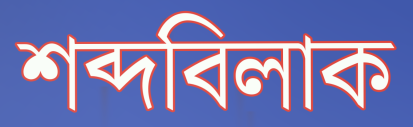
শব্দবিলাক